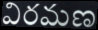
విరమణ